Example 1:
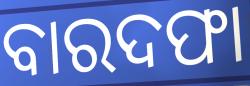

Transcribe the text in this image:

ବାରଦଫା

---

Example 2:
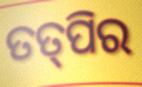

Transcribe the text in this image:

ତତ୍‌ପିର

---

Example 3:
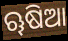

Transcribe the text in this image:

ୠଷିଆ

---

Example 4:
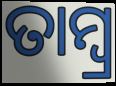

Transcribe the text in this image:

ତାମ୍ବ୍ର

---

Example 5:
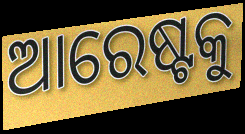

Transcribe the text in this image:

ଆରେଷ୍ଟକୁ